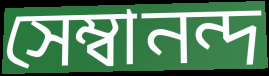
সেম্বানন্দ